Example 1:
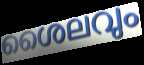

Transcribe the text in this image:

ശൈലവും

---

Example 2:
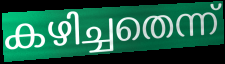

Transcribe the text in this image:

കഴിച്ചതെന്ന്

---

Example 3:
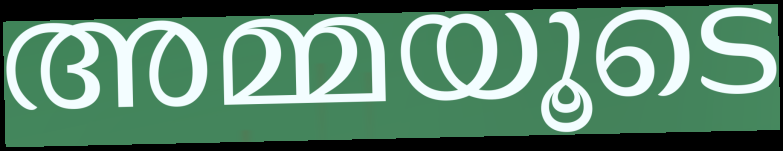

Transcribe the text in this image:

അമ്മയൂടെ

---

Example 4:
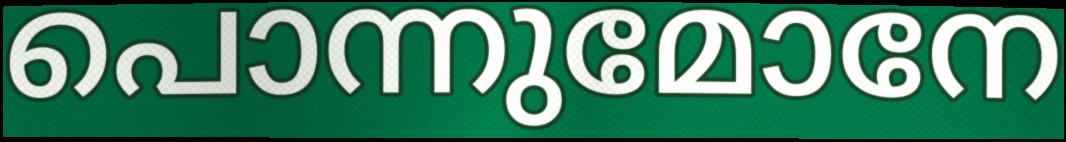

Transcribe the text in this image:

പൊന്നുമോനേ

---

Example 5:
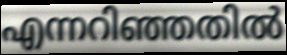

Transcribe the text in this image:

എന്നറിഞ്ഞതിൽ